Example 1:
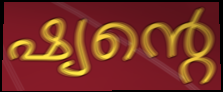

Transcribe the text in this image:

ഷ്യന്റെ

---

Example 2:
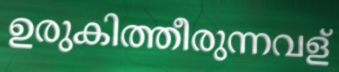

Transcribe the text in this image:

ഉരുകിത്തീരുന്നവള്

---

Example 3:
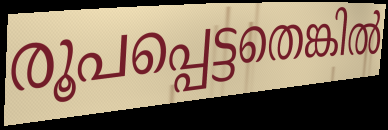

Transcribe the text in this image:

രൂപപ്പെട്ടതെങ്കിൽ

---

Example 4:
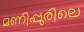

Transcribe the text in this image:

മണിപ്പുരിലെ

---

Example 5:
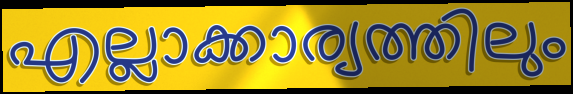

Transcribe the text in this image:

എല്ലാക്കാര്യത്തിലും